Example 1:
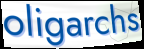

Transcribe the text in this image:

oligarchs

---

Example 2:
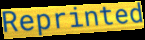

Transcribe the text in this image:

Reprinted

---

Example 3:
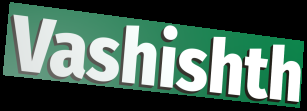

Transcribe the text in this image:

Vashishth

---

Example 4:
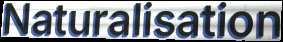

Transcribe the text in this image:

Naturalisation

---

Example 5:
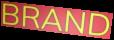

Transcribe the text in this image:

BRAND